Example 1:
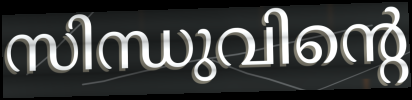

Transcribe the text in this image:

സിന്ധുവിന്റെ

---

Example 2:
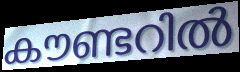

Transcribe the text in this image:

കൗണ്ടറിൽ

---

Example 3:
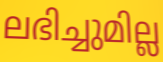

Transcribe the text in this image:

ലഭിച്ചുമില്ല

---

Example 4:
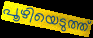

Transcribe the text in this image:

പൂഴിയെടുത്ത്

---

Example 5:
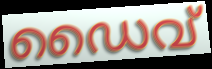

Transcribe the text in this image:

ഡൈവ്